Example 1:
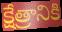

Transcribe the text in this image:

క్షేత్రానికి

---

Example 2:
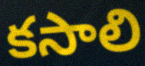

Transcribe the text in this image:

కసాలి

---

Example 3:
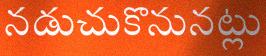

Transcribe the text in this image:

నడుచుకొనునట్లు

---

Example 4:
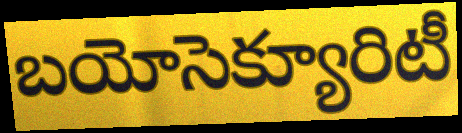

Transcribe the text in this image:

బయోసెక్యూరిటీ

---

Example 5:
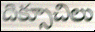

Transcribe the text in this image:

దిక్సూచిలు